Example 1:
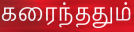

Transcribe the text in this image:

கரைந்ததும்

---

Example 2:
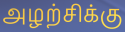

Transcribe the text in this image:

அழற்சிக்கு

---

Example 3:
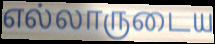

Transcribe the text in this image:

எல்லாருடைய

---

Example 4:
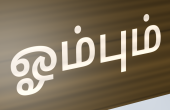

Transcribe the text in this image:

ஓம்பும்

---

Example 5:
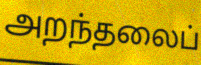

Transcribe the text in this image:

அறந்தலைப்